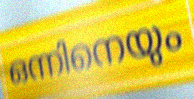
ഒന്നിനെയും